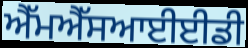
ਐੱਮਐੱਸਆਈਈਡੀ